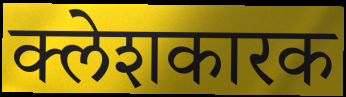
क्लेशकारक